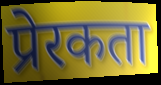
प्रेरकता